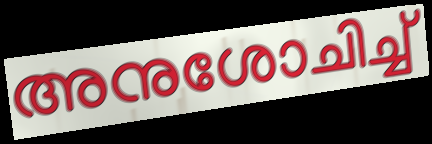
അനുശോചിച്ച്